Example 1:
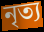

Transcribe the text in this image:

নৃত্য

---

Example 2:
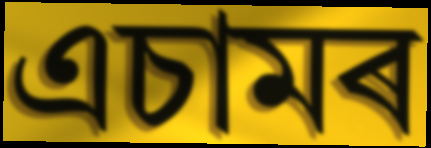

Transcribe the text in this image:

এচামৰ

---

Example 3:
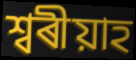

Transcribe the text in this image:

শ্বৰীয়াহ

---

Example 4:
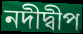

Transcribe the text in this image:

নদীদ্বীপ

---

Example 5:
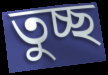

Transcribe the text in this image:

তুচ্ছ